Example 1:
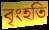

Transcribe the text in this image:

বৃংহতি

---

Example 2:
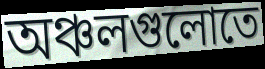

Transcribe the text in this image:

অঞ্চলগুলোতে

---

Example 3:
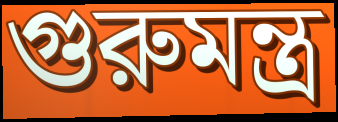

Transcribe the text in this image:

গুরুমন্ত্র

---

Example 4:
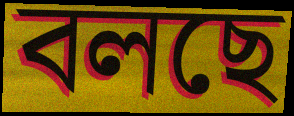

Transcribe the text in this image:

বলছে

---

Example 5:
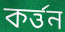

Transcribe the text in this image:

কর্ত্তন